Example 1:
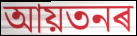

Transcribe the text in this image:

আয়তনৰ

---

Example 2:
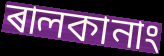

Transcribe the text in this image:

ৰালকানাং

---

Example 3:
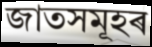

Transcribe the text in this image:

জাতসমূহৰ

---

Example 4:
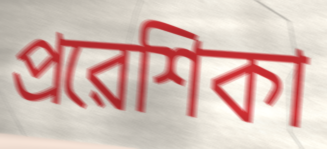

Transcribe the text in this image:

প্ৰৱেশিকা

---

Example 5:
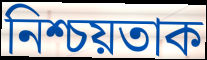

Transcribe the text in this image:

নিশ্চয়তাক